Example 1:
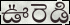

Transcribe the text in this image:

ఊరెడి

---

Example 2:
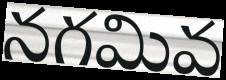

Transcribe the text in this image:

నగమివ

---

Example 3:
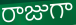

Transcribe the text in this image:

రాజుగా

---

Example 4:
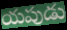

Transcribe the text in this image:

యపుడు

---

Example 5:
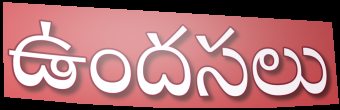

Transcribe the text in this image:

ఉందసలు